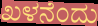
ಖಳನೆಂದು